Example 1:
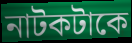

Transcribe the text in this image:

নাটকটাকে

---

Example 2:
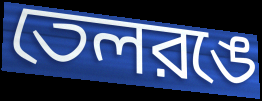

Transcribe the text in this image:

তেলরঙে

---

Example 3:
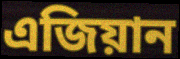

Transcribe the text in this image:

এজিয়ান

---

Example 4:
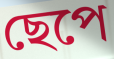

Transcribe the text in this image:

ছেপে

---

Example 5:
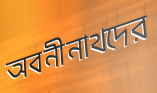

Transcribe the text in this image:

অবনীনাথদের